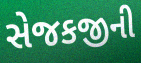
સેજકજીની